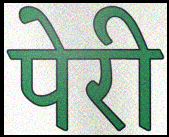
पेरी